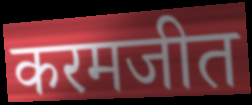
करमजीत